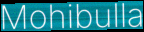
Mohibulla